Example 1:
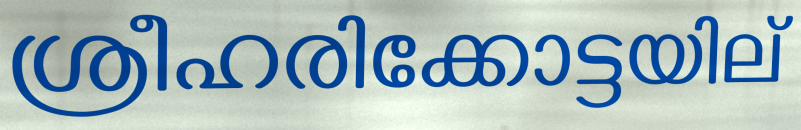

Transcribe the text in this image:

ശ്രീഹരിക്കോട്ടയില്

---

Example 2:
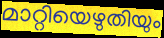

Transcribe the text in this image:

മാറ്റിയെഴുതിയും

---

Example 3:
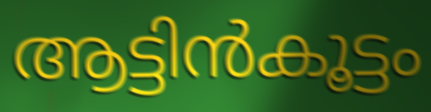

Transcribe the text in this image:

ആട്ടിൻകൂട്ടം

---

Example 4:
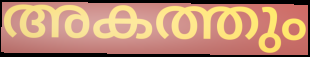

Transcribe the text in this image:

അകത്തും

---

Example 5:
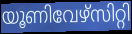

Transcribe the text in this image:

യൂണിവേഴ്സിറ്റി